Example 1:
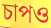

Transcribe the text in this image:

চাপও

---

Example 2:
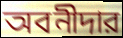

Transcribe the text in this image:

অবনীদার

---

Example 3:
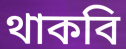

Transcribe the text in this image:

থাকবি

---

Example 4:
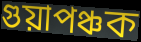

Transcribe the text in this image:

গুয়াপঞ্চক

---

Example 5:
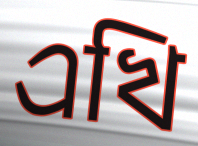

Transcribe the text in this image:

এখি